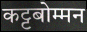
कट्टबोम्मन